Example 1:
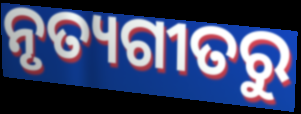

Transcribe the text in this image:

ନୃତ୍ୟଗୀତରୁ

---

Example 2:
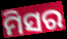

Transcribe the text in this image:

ମିସର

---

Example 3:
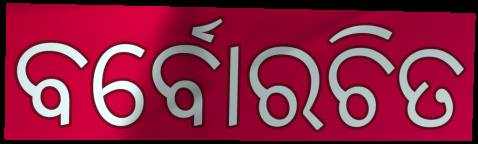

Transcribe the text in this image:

ବର୍ବୋରଚିତ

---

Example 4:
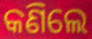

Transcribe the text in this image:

କଣିଲେ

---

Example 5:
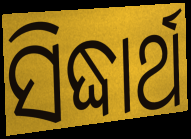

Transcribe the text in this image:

ସିଦ୍ଧାର୍ଥ